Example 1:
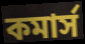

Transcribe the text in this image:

কমার্স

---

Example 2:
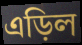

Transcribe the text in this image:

এড়িল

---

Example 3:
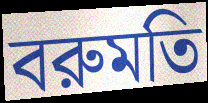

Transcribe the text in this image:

বরুমতি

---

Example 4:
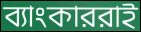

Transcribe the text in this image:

ব্যাংকাররাই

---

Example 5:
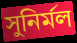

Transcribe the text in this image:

সুনির্মল